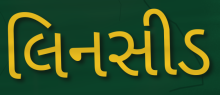
લિનસીડ